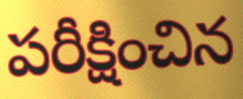
పరీక్షించిన